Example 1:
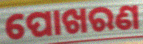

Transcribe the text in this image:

ପୋଖରଣ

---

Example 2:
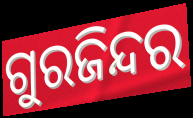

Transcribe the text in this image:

ଗୁରଜିନ୍ଦର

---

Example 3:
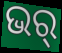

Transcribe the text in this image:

ଭର୍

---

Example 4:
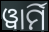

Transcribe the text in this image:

ୱାର୍ମି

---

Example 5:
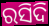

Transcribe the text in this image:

ରସିଦି